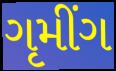
ગૃમીંગ